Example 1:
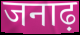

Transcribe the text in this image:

जनाढ़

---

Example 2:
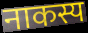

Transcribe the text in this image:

नाकस्य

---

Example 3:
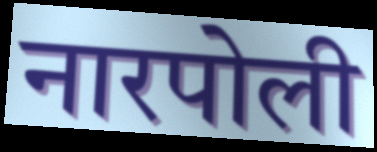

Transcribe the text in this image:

नारपोली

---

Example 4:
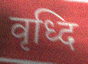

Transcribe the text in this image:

वृध्दि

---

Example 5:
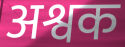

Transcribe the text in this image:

अश्वक